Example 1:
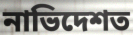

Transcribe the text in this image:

নাভিদেশত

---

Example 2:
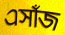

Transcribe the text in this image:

এসাঁজ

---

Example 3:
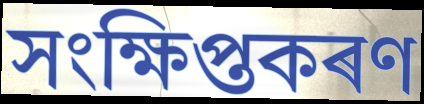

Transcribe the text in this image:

সংক্ষিপ্তকৰণ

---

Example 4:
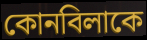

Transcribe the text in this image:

কোনবিলাকে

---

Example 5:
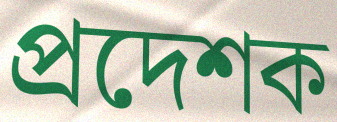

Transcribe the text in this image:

প্ৰদেশক